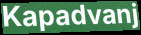
Kapadvanj